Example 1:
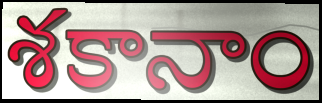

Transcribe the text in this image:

శకానాం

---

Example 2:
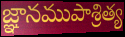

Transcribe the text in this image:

జ్ఞానముపాశ్రిత్య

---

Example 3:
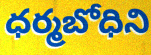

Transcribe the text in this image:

ధర్మబోధిని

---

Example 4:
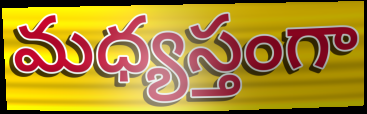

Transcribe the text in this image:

మధ్యస్తంగా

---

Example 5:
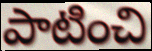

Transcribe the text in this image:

పాటించి